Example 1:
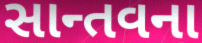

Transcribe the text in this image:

સાન્તવના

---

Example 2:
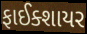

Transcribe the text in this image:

ફાઈક્શાયર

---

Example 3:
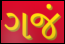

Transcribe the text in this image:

ગજં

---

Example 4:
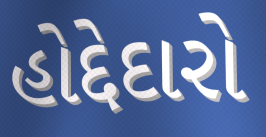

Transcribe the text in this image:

હોદ્દેદારો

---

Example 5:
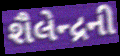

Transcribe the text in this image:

શૈલેન્દ્રની